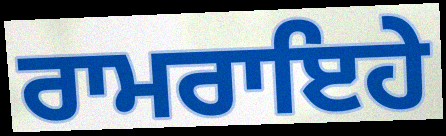
ਰਾਮਰਾਇਹੇ